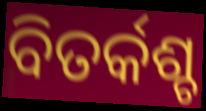
ବିତର୍କଶ୍ଚ